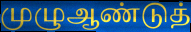
முழுஆண்டுத்